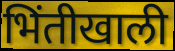
भिंतीखाली